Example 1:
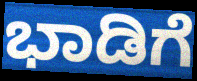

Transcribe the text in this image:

ಭಾಡಿಗೆ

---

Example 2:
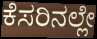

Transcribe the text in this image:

ಕೆಸರಿನಲ್ಲೇ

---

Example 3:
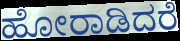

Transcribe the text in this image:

ಹೋರಾಡಿದರೆ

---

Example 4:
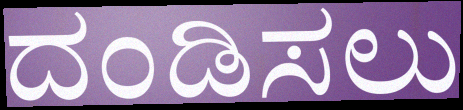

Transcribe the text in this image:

ದಂಡಿಸಲು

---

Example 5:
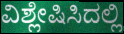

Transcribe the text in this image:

ವಿಶ್ಲೇಷಿಸಿದಲ್ಲಿ